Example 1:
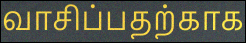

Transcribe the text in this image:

வாசிப்பதற்காக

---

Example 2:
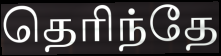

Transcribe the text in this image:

தெரிந்தே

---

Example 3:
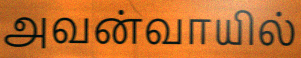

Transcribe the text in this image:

அவன்வாயில்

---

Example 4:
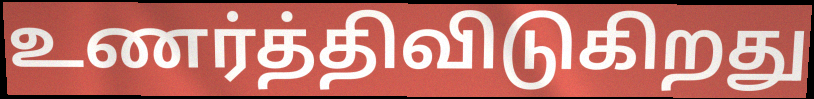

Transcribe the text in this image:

உணர்த்திவிடுகிறது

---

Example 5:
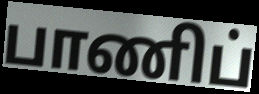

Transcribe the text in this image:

பாணிப்